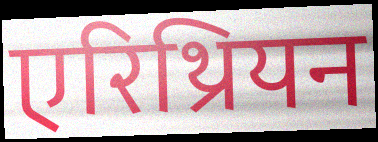
एरिथ्रियन